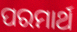
ପରମାର୍ଥ